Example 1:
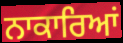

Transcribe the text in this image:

ਨਾਕਾਰਿਆਂ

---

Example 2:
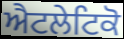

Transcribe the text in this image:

ਐਟਲੇਟਿਕੋ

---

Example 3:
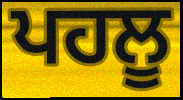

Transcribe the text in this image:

ਪਹਲੂ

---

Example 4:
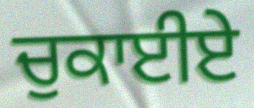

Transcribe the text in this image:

ਚੁਕਾਈਏ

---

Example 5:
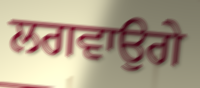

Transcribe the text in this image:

ਲਗਵਾਉਗੇ